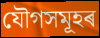
যৌগসমূহৰ